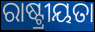
ରାଷ୍ଟ୍ରୀୟତା